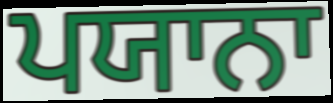
ਪਯਾਨਾ